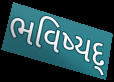
ભવિષ્યદ્